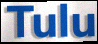
Tulu